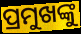
ପ୍ରମୁଖଙ୍କୁ